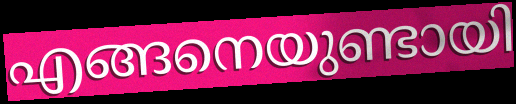
എങ്ങനെയുണ്ടായി